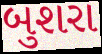
બુશરા